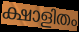
ക്ഷാളിതം